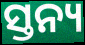
ସ୍ତନ୍ୟ